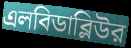
এলবিডাব্লিউর